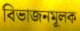
বিভাজনমূলক